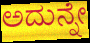
ಅದುನ್ನೇ